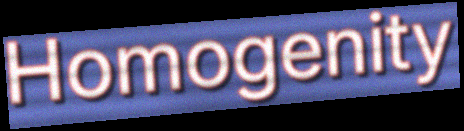
Homogenity